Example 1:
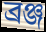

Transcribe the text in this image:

ব্ৰঞ্জ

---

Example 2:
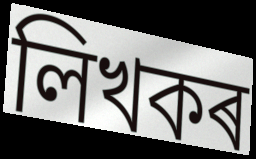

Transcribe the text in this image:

লিখকৰ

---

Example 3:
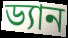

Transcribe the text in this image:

ড্যান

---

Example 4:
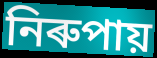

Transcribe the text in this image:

নিৰুপায়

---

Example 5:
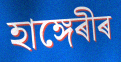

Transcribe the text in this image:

হাঙ্গেৰীৰ